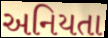
અનિયતા